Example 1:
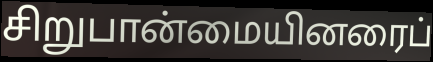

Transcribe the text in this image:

சிறுபான்மையினரைப்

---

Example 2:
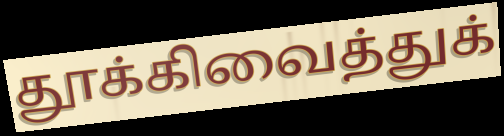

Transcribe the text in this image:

தூக்கிவைத்துக்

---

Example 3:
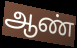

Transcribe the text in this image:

ஆண்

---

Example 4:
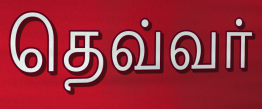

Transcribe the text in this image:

தெவ்வர்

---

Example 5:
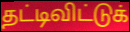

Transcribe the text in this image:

தட்டிவிட்டுக்